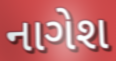
નાગેશ